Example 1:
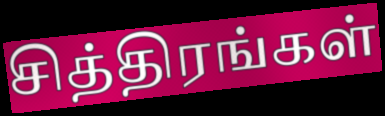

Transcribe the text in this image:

சித்திரங்கள்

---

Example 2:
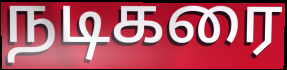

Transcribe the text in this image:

நடிகரை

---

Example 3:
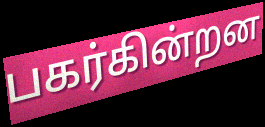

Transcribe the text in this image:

பகர்கின்றன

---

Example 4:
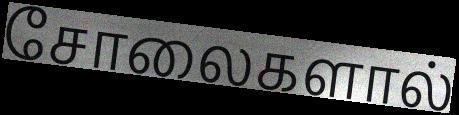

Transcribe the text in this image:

சோலைகளால்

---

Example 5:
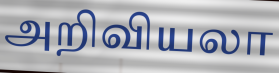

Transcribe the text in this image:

அறிவியலா